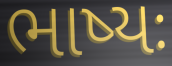
ભાષ્યઃ